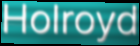
Holroyd